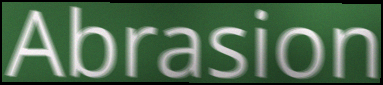
Abrasion